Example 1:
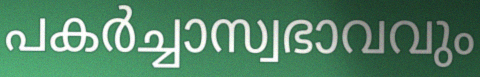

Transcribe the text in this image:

പകർച്ചാസ്വഭാവവും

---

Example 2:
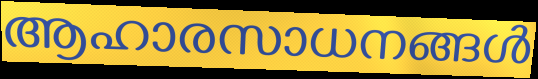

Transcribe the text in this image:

ആഹാരസാധനങ്ങൾ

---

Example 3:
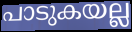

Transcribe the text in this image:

പാടുകയല്ല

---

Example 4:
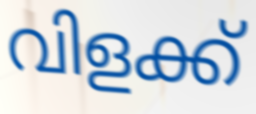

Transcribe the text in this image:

വിളക്ക്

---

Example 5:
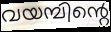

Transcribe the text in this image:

വയമ്പിന്റെ